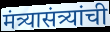
मंत्र्यासंत्र्यांची